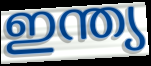
ഇന്ത്യ